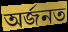
অৰ্জনত